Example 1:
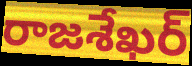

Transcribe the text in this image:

రాజశేఖర్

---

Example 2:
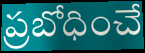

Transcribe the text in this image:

ప్రబోధించే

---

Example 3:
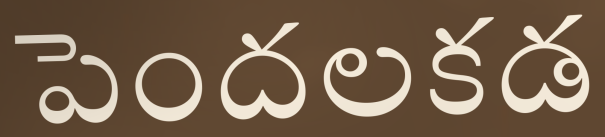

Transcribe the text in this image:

పెందలకడ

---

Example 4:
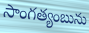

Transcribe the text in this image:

సాంగత్యంబును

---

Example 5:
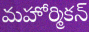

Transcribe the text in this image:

మహోర్మికన్